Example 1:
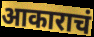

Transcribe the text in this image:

आकाराचं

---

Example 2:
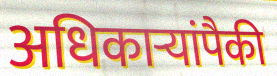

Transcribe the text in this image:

अधिकार्‍यांपैकी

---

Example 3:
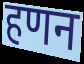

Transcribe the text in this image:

हणन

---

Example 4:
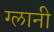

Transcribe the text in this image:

ग्लानी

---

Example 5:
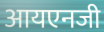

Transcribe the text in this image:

आयएनजी